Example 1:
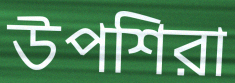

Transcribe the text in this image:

উপশিরা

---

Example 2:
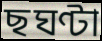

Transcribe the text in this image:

ছঘণ্টা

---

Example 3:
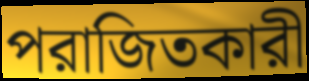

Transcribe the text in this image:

পরাজিতকারী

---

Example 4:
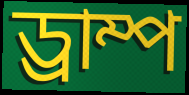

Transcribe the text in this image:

ড্রাম্প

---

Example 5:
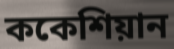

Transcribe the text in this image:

ককেশিয়ান